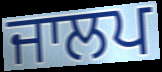
ਜਾਲਪ